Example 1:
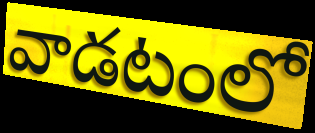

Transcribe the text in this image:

వాడటంలో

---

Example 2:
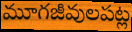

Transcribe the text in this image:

మూగజీవులపట్ల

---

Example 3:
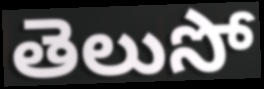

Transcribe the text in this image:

తెలుసో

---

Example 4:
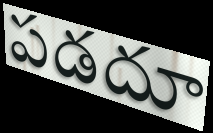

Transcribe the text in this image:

పడదూ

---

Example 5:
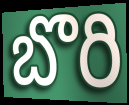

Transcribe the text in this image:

బొరి